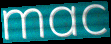
mac